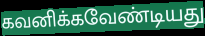
கவனிக்கவேண்டியது